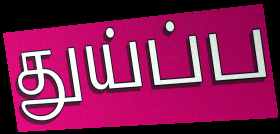
துய்ப்ப